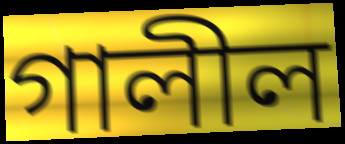
গালীল